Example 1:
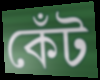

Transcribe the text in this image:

কেঁট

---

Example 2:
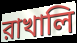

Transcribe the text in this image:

রাখালি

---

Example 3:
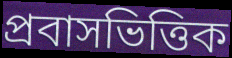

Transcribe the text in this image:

প্রবাসভিত্তিক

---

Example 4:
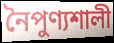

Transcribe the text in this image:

নৈপুণ্যশালী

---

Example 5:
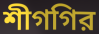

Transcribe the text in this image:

শীগগির